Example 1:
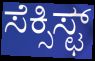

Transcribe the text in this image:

ಸೆಕ್ಸಿಸ್ಟ್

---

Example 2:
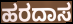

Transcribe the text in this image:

ಹರದಾಸ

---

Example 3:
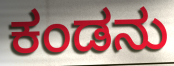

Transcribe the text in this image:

ಕಂಡನು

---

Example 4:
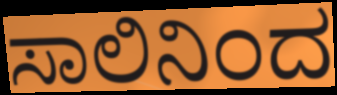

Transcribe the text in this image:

ಸಾಲಿನಿಂದ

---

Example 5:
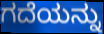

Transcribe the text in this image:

ಗದೆಯನ್ನು